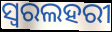
ସ୍ୱରଲହରୀ